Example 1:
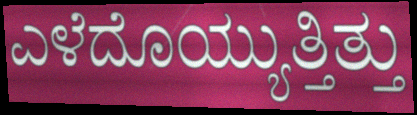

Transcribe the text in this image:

ಎಳೆದೊಯ್ಯುತ್ತಿತ್ತು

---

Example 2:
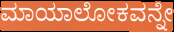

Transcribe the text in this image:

ಮಾಯಾಲೋಕವನ್ನೇ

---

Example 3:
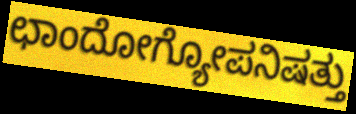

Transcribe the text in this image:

ಛಾಂದೋಗ್ಯೋಪನಿಷತ್ತು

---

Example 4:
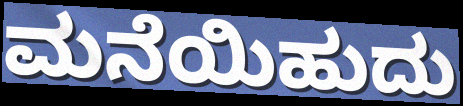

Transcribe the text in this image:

ಮನೆಯಿಹುದು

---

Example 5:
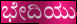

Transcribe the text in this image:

ಭೇದಿಯು